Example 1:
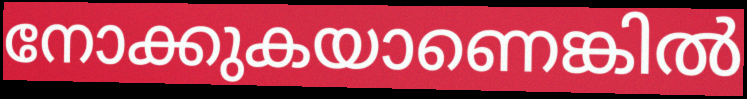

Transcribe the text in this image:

നോക്കുകയാണെങ്കിൽ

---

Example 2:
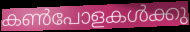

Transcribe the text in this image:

കൺപോളകൾക്കു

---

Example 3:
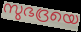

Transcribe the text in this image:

സുഭദ്രയെ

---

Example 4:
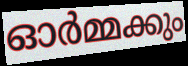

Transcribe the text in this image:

ഓർമ്മക്കും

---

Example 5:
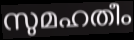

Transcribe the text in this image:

സുമഹതീം